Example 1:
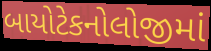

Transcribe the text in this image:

બાયોટેકનોલોજીમાં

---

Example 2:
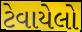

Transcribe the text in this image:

ટેવાયેલો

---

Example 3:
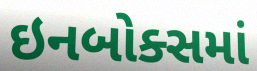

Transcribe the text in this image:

ઇનબોક્સમાં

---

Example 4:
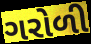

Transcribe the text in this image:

ગરોળી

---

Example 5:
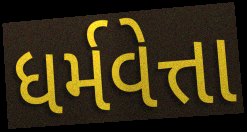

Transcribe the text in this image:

ધર્મવેત્તા